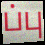
ப்பு